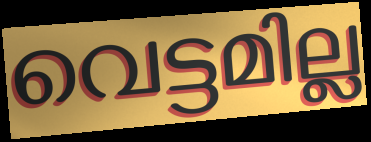
വെട്ടമില്ല